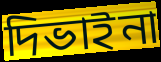
দিভাইনা